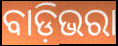
ବାଡ଼ିଭରା